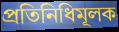
প্ৰতিনিধিমূলক